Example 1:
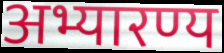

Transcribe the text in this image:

अभ्यारण्य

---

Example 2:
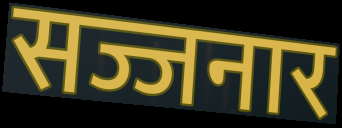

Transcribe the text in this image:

सज्जनार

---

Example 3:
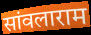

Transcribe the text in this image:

सांवलाराम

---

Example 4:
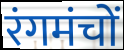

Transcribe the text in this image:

रंगमंचों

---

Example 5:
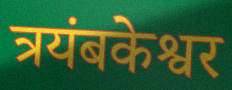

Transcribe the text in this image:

त्रयंबकेश्वर